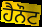
ਹੈਨੌਟ